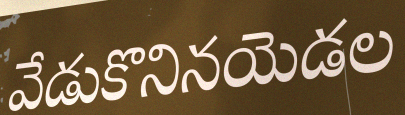
వేడుకొనినయెడల